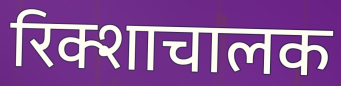
रिक्शाचालक